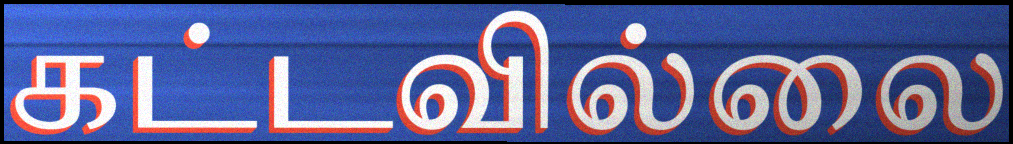
கட்டவில்லை